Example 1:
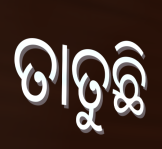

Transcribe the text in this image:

ତାତୁଛି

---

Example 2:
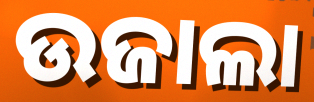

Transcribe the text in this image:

ଉଜାଲା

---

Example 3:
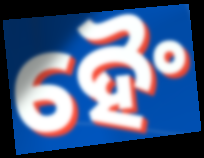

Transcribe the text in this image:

ହୈଂ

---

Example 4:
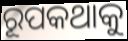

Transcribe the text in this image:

ରୂପକଥାକୁ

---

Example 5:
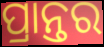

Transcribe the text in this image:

ପ୍ରାନ୍ତର